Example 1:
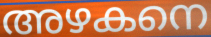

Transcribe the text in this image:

അഴകനെ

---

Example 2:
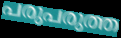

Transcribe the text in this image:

പരുപരുത്ത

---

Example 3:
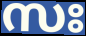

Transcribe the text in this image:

സഃ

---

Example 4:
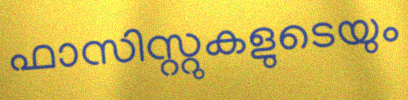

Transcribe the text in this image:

ഫാസിസ്റ്റുകളുടെയും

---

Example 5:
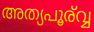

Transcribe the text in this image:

അത്യപൂര്വ്വ